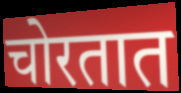
चोरतात